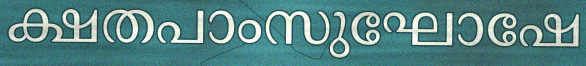
ക്ഷതപാംസുഘോഷേ